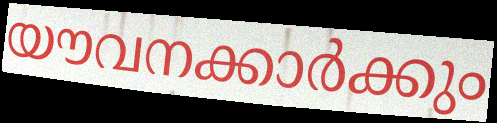
യൗവനക്കാർക്കും